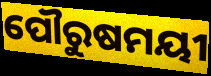
ପୌରୁଷମୟୀ